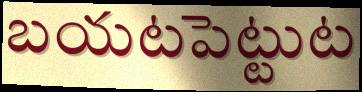
బయటపెట్టుట